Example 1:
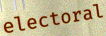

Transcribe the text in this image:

electoral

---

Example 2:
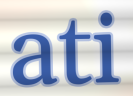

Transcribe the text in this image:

ati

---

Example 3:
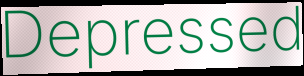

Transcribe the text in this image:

Depressed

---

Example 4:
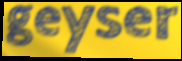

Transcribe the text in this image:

geyser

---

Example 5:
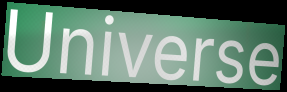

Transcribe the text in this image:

Universe